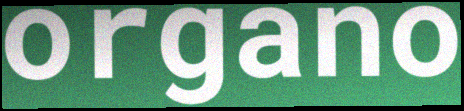
organo